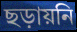
ছড়ায়নি